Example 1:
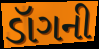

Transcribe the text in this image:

ડૉગની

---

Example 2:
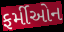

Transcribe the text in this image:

ફર્મીઓન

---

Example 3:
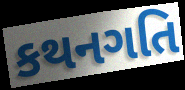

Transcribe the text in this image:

કથનગતિ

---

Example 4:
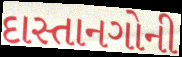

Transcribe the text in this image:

દાસ્તાનગોની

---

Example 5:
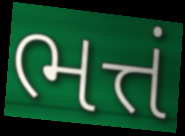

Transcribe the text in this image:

ભત્તં